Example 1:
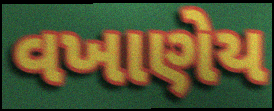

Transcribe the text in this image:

વખાણેય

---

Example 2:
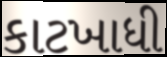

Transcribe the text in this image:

કાટખાધી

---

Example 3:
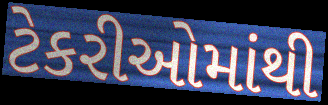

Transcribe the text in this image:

ટેકરીઓમાંથી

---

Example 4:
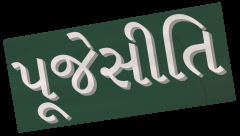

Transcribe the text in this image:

પૂજેસીતિ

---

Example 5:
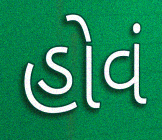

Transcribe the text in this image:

હોવં